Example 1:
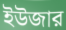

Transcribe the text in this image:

ইউজার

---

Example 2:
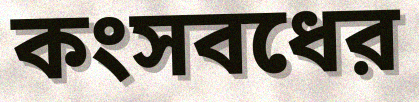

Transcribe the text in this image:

কংসবধের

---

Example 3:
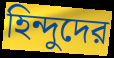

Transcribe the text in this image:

হিন্দুদের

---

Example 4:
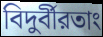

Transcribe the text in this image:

বিদুর্বীরতাং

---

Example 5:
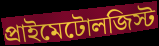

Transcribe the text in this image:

প্রাইমেটোলজিস্ট